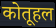
कोतूहल